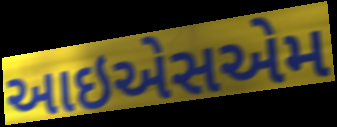
આઇએસએમ